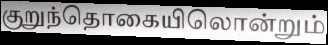
குறுந்தொகையிலொன்றும்